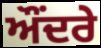
ਔਂਦਰੇ